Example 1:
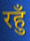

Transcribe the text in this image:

रहुँ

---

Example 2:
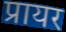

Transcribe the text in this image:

प्रायर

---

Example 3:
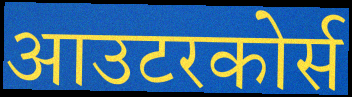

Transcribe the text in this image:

आउटरकोर्स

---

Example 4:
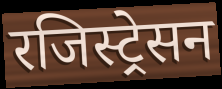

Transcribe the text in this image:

रजिस्ट्रेसन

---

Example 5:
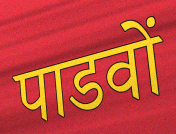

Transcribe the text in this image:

पाडवों